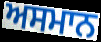
ਅਸਮਾਨ